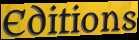
Editions